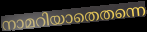
നാമറിയാതെതന്നെ